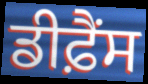
ਡੀਫ਼ੈਂਸ